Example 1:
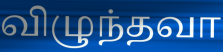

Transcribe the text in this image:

விழுந்தவா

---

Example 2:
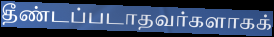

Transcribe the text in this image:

தீண்டப்படாதவர்களாகக்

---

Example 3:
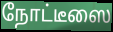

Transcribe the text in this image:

நோட்டீஸை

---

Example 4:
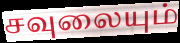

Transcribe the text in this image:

சவுலையும்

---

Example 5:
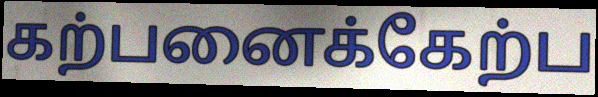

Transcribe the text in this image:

கற்பனைக்கேற்ப